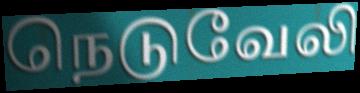
நெடுவேலி